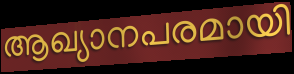
ആഖ്യാനപരമായി